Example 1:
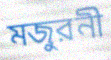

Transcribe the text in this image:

মজুরনী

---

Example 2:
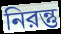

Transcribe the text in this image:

নিরন্তু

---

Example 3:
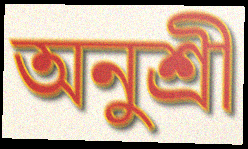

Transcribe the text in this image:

অনুশ্রী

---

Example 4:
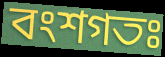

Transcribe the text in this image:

বংশগতঃ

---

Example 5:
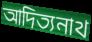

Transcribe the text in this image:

আদিত্যনাথ